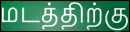
மடத்திற்கு